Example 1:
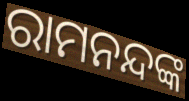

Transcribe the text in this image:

ରାମନନ୍ଦଙ୍କ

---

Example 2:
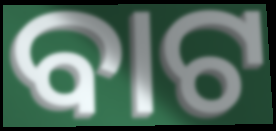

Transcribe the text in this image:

ବାଟ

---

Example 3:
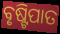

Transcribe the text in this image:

ବୃଷ୍ଟିପାତ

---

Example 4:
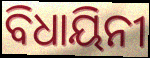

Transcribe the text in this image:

ବିଧାୟିନୀ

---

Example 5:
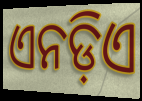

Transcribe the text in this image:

ଏନଡ଼ିଏ